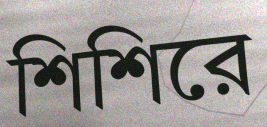
শিশিরে